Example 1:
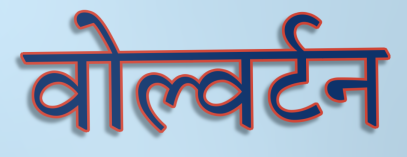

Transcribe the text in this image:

वोल्वर्टन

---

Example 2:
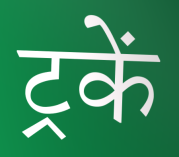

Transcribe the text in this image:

ट्रकें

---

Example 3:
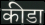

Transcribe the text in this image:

कीडा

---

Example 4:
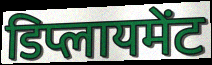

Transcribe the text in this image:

डिप्लायमेंट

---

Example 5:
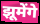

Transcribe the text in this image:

झूमेंगे